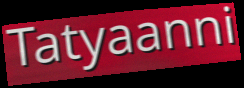
Tatyaanni